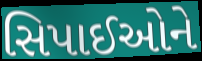
સિપાઈઓને